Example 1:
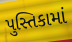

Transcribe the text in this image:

પુસ્તિકામાં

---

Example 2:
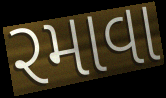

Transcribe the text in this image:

રમાવા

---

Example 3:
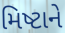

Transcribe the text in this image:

મિષ્ટાને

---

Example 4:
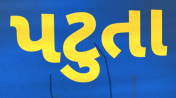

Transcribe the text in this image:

પટુતા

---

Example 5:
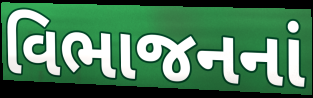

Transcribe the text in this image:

વિભાજનનાં